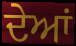
ਦੇਆਂ